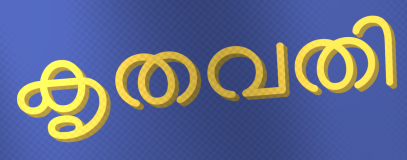
കൃതവതി